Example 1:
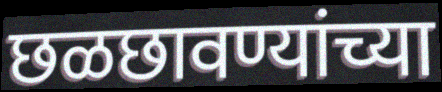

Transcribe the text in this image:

छळछावण्यांच्या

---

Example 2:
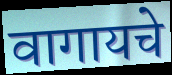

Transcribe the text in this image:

वागायचे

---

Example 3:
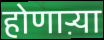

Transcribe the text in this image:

होणाऱ्‍या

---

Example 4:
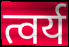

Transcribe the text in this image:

त्वर्य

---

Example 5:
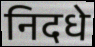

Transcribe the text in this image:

निदधे